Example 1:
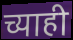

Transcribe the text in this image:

च्याही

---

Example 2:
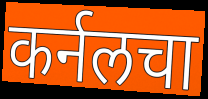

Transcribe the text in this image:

कर्नलचा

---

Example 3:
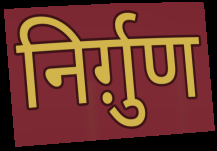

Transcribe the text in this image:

निर्ग़ुण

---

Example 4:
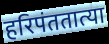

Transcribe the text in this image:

हरिपंततात्या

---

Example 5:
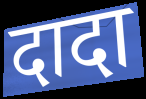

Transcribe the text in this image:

दादा